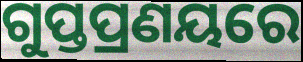
ଗୁପ୍ତପ୍ରଣୟରେ